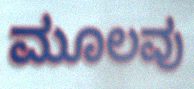
ಮೂಲವು